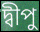
দ্বীপু